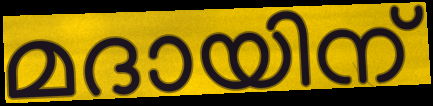
മദായിന്